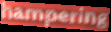
hampering